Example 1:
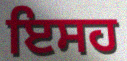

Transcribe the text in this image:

ਇਸਹ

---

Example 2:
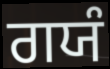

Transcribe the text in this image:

ਗਯੰ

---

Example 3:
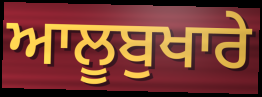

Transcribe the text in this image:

ਆਲੂਬੁਖਾਰੇ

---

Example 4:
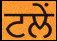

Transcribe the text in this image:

ਟਲੇਂ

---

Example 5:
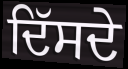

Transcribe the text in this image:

ਦਿੱਸਦੇ